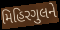
મિહિરગુલને